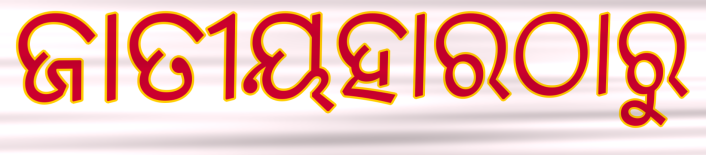
ଜାତୀୟହାରଠାରୁ